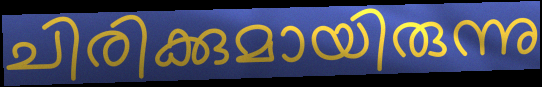
ചിരിക്കുമായിരുന്നു